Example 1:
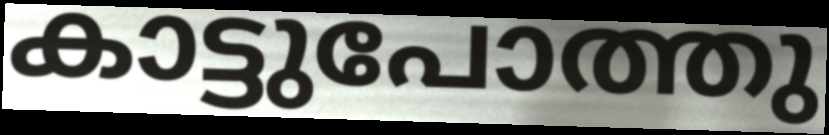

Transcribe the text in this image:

കാട്ടുപോത്തു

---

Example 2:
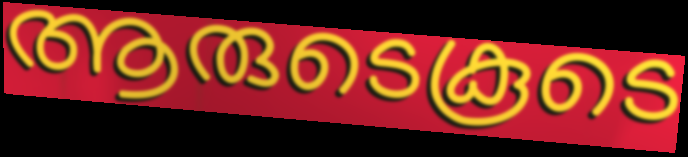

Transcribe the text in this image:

ആരുടെകൂടെ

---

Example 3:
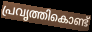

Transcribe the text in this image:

പ്രവൃത്തികൊണ്ട്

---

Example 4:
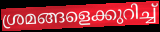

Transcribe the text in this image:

ശ്രമങ്ങളെക്കുറിച്ച്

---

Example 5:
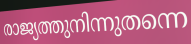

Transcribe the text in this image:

രാജ്യത്തുനിന്നുതന്നെ